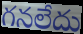
గనలేదు